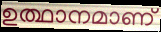
ഉത്ഥാനമാണ്